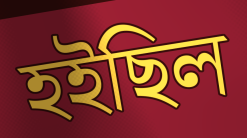
হইছিল